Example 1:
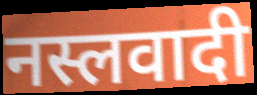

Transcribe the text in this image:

नस्लवादी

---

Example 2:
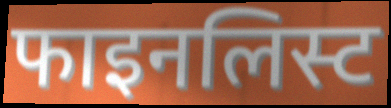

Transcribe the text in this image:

फाइनलिस्ट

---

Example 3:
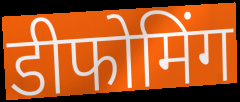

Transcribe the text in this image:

डीफोमिंग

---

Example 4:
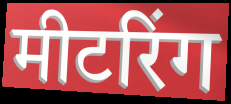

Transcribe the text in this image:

मीटरिंग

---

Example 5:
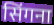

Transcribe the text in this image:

सिंगना